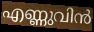
എണ്ണുവിൻ